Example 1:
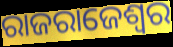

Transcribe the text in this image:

ରାଜରାଜେଶ୍ଵର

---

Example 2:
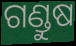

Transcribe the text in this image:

ଗଣ୍ଡୁଷ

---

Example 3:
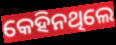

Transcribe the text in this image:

କେହିନଥିଲେ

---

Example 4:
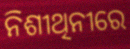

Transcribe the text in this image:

ନିଶୀଥିନୀରେ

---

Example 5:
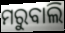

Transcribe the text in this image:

ମରୁବାଲି